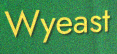
Wyeast